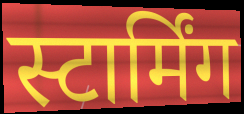
स्टार्मिंग